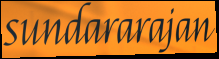
sundararajan